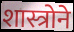
शास्त्रोने